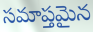
సమాప్తమైన